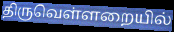
திருவெள்ளறையில்